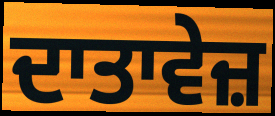
ਦਾਤਾਵੇਜ਼